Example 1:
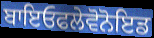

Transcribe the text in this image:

ਬਾਇਓਫਲੇਵੋਨੋਇਡ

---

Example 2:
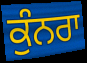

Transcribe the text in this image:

ਕੁੰਨਰਾ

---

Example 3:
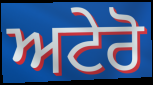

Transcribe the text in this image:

ਅਟੇਰੋ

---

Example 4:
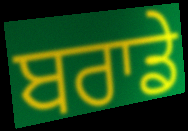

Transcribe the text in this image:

ਬਰਾਡੇ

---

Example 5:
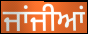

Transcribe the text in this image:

ਜਾਂਜੀਆਂ